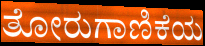
ತೋರುಗಾಣಿಕೆಯ